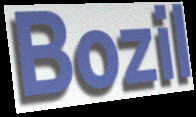
Bozil